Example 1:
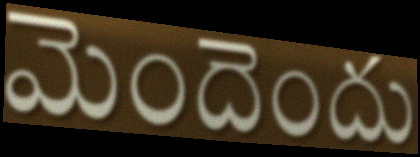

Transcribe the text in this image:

మెందెందు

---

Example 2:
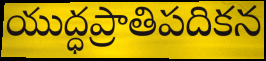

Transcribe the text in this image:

యుద్ధప్రాతిపదికన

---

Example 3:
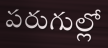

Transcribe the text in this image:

పరుగుల్లో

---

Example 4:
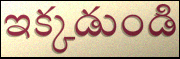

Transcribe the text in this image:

ఇక్కడుండి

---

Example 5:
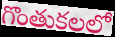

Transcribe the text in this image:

గొంతుకలలో